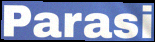
Parasi